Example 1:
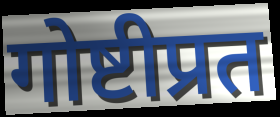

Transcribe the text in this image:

गोष्टीप्रत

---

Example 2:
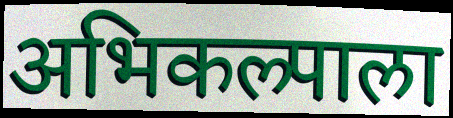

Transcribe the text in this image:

अभिकल्पाला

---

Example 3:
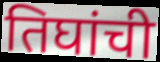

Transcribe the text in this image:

तिघांची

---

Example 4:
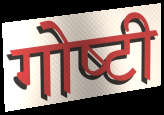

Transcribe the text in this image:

गोष्‍टी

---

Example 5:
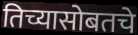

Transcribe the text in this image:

तिच्यासोबतचे